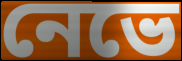
নেভে